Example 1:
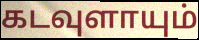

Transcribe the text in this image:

கடவுளாயும்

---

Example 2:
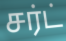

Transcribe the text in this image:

சர்ட்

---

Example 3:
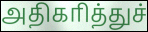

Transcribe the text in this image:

அதிகரித்துச்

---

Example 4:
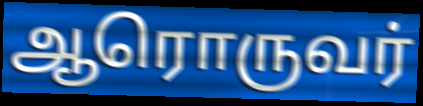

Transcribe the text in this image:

ஆரொருவர்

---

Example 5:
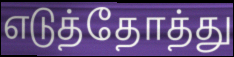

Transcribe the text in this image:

எடுத்தோத்து